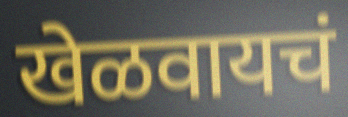
खेळवायचं